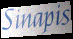
Sinapis